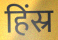
हिंस्र